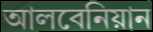
আলবেনিয়ান